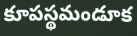
కూపస్థమండూక